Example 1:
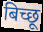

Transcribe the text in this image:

बिच्छू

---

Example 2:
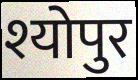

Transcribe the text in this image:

श्योपुर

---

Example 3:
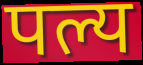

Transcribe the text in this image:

पल्य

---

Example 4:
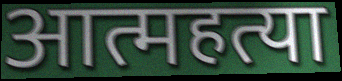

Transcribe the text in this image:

आत्‍महत्‍या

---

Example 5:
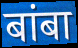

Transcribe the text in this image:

बांबा